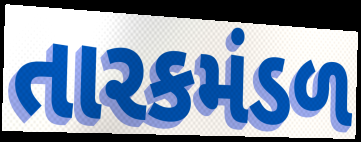
તારકમંડળ